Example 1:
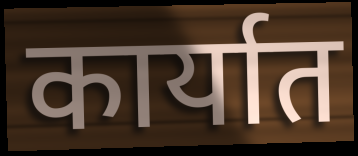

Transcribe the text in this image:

कार्यात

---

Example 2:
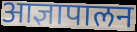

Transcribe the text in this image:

आज्ञापालन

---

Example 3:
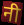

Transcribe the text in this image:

नी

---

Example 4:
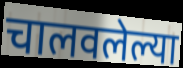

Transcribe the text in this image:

चालवलेल्या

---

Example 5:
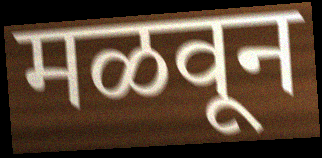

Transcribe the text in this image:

मळवून